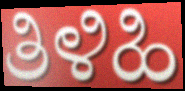
ತಿಳಿಹಿ